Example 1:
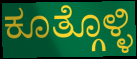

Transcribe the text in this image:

ಕೂತ್ಗೊಳ್ಳಿ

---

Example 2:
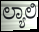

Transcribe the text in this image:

ಲ್ಯಾಲಿ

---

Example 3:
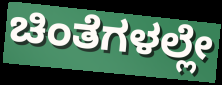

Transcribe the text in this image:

ಚಿಂತೆಗಳಲ್ಲೇ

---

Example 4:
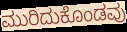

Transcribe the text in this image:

ಮುರಿದುಕೊಂಡವು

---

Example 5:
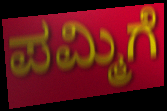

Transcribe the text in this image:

ಪಮ್ಮಿಗೆ